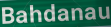
Bahdanau